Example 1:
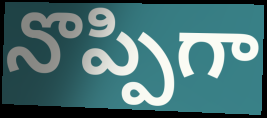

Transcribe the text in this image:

నొప్పిగా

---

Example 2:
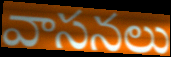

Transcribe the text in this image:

వాసనలు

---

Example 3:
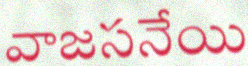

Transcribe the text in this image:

వాజసనేయి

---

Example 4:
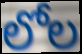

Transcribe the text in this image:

లోల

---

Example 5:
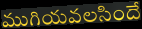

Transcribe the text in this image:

ముగియవలసిందే